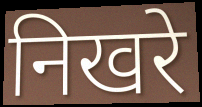
निखरे